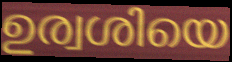
ഉര്വശിയെ